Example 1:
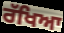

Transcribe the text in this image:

ਰੱਖਿਆ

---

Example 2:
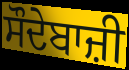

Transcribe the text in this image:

ਸੌਦੇਬਾਜ਼ੀ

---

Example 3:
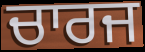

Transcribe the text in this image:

ਚਾਰਜ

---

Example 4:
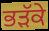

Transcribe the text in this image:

ਭੜੱਕੇ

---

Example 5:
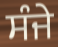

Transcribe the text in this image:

ਸੰਜੇ